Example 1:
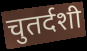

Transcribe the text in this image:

चुतर्दशी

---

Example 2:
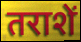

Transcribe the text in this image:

तराशें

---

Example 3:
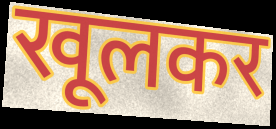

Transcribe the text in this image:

खूलकर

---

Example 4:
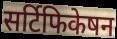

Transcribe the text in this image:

सर्टिफिकेषन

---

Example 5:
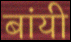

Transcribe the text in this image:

बांयी